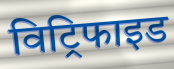
विट्रिफाइड